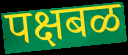
पक्षबळ